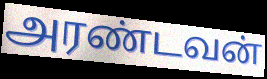
அரண்டவன்